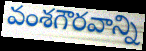
వంశగౌరవాన్ని